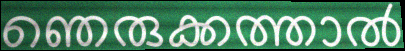
ഞെരുക്കത്താൽ